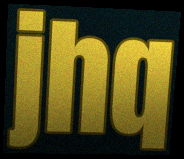
jhq